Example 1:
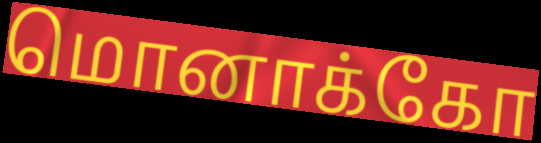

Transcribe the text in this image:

மொனாக்கோ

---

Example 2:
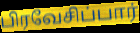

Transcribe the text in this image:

பிரவேசிப்பார்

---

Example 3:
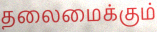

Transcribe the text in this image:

தலைமைக்கும்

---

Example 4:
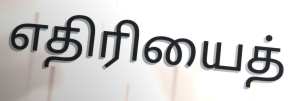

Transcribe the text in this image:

எதிரியைத்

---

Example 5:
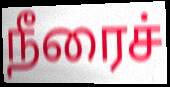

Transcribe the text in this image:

நீரைச்